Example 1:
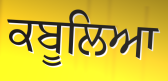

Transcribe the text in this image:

ਕਬੂਲਿਆ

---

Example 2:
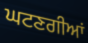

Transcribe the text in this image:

ਘਟਣਗੀਆਂ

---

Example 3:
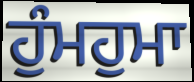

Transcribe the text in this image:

ਹੁੰਮਹੁਮਾ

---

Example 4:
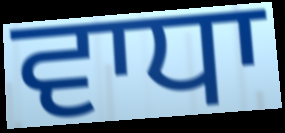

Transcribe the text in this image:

ਵਾਧਾ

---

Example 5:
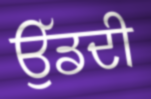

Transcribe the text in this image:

ਉੱਡਦੀ